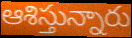
ఆశిస్తున్నారు